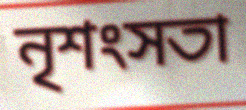
নৃশংসতা